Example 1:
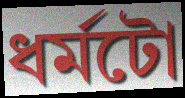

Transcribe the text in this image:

ধৰ্মটো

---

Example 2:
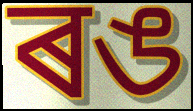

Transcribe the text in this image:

ৰঙ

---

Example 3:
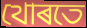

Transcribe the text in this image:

থোৰতে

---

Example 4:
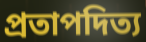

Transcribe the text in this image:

প্ৰতাপদিত্য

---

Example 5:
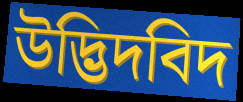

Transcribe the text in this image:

উদ্ভিদবিদ